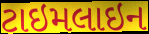
ટાઇમલાઇન